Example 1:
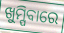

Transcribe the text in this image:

ଖୁମ୍ପିବାରେ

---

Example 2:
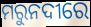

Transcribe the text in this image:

ମରୁନଦୀରେ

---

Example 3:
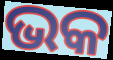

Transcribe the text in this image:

ଭକ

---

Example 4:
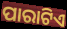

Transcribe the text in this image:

ପାରାଟିଏ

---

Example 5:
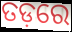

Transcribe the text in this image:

ତଡ଼ରେ